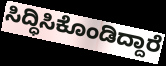
ಸಿದ್ಧಿಸಿಕೊಂಡಿದ್ದಾರೆ